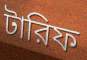
টারিফ